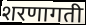
शरणागती